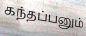
கந்தப்பனும்